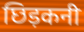
छिड़कनी